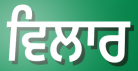
ਵਿਲਾਰ